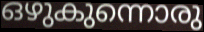
ഒഴുകുന്നൊരു